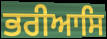
ਭਰੀਆਸਿ